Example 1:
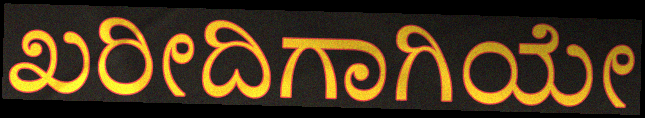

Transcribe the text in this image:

ಖರೀದಿಗಾಗಿಯೇ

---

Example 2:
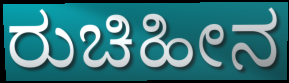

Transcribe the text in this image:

ರುಚಿಹೀನ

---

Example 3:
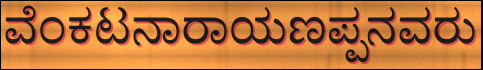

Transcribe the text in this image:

ವೆಂಕಟನಾರಾಯಣಪ್ಪನವರು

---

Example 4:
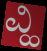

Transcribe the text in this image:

ವ್ಹಿ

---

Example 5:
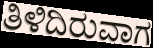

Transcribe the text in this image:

ತಿಳಿದಿರುವಾಗ